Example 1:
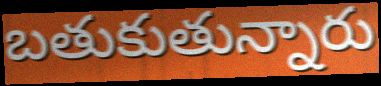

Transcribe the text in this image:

బతుకుతున్నారు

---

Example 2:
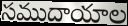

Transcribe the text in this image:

సముదాయాల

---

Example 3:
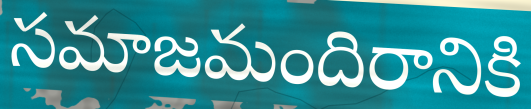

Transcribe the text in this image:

సమాజమందిరానికి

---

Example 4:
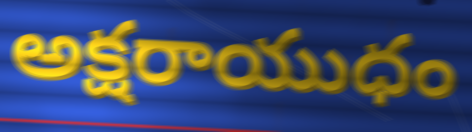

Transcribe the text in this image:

అక్షరాయుధం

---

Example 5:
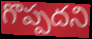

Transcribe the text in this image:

గొప్పదని